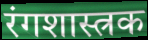
रंगशास्त्रक